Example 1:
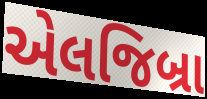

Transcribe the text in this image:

એલજિબ્રા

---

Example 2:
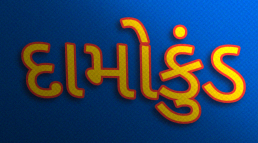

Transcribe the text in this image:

દામોકુંડ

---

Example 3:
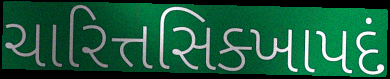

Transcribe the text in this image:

ચારિત્તસિક્ખાપદં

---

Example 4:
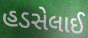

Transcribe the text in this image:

હડસેલાઈ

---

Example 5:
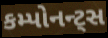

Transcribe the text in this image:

કમ્પોનન્ટ્સ